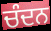
ਚੰਦਨ